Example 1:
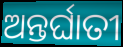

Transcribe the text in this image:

ଅନ୍ତର୍ଘାତୀ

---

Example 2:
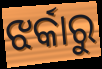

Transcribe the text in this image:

ଝର୍କାରୁ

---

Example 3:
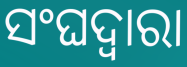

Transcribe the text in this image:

ସଂଘଦ୍ୱାରା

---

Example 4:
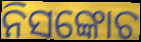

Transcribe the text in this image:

ନିସଙ୍କୋଚ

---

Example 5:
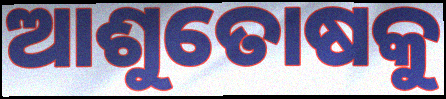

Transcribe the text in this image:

ଆଶୁତୋଷକୁ